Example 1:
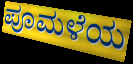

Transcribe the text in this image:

ಪೂಮಳೆಯ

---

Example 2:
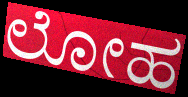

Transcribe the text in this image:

ಲೋಹ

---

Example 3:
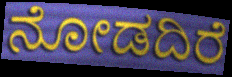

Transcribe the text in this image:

ನೋಡದಿರೆ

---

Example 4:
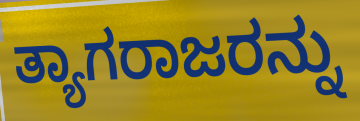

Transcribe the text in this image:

ತ್ಯಾಗರಾಜರನ್ನು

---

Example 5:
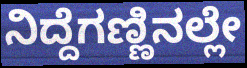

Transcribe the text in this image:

ನಿದ್ದೆಗಣ್ಣಿನಲ್ಲೇ